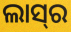
ଲାସ୍‌ର